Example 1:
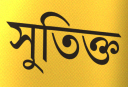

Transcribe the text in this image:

সুতিক্ত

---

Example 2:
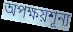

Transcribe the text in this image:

অপক্ষয়শূন্য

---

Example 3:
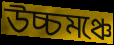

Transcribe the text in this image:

উচ্চমঞ্চে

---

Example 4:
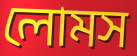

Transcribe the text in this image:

লোমস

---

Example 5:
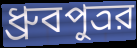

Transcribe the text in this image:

ধ্রুবপুত্রর